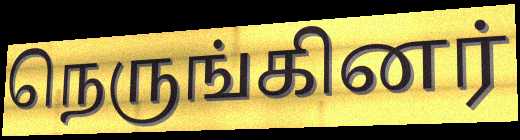
நெருங்கினர்